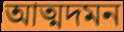
আত্মদমন